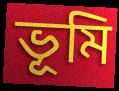
ভূমি